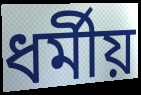
ধর্মীয়